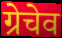
ग्रेचेव